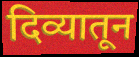
दिव्यातून